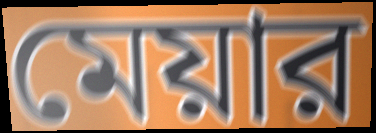
মেয়ার